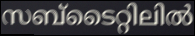
സബ്ടൈറ്റിലിൽ